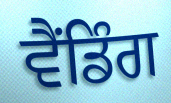
ਵੈਂਡਿੰਗ